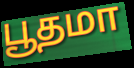
பூதமா